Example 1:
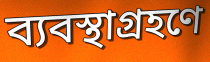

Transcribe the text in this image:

ব্যবস্থাগ্রহণে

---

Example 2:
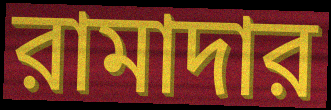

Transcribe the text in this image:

রামাদার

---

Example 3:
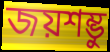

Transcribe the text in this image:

জয়শম্ভু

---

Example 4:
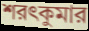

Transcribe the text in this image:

শরৎকুমার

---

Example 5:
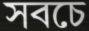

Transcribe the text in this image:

সবচে